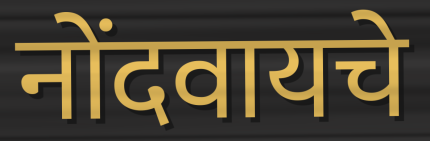
नोंदवायचे